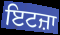
ਇਟਜ਼ਾ